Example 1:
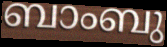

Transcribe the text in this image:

ബാംബു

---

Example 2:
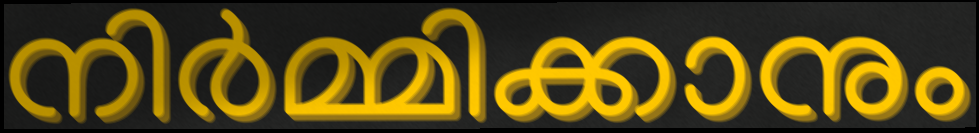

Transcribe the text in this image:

നിർമ്മിക്കാനും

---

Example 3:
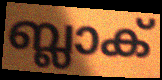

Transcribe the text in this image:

ബ്ലാക്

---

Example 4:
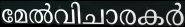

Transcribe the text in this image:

മേൽവിചാരകർ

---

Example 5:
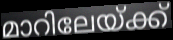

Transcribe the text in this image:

മാറിലേയ്ക്ക്